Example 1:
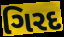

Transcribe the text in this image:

ગિરદ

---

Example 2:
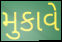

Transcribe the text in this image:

મુકાવે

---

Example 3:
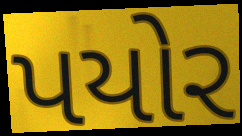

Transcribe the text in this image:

પયોર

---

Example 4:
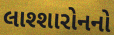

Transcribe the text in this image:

લાશ્શારોનનો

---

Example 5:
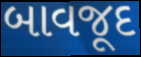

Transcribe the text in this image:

બાવજૂદ